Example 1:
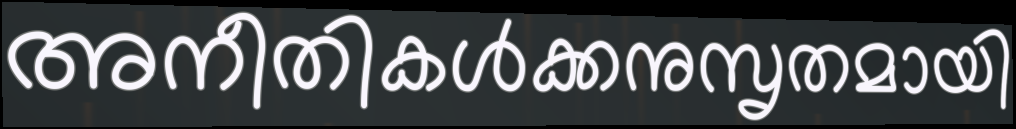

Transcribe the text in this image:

അനീതികൾക്കനുസൃതമായി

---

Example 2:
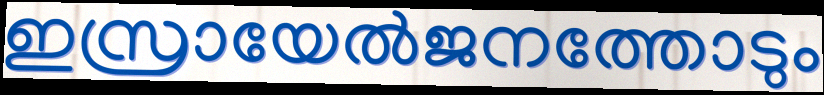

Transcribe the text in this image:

ഇസ്രായേൽജനത്തോടും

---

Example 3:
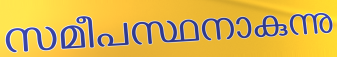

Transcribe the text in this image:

സമീപസ്ഥനാകുന്നു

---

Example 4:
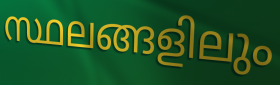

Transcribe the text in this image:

സ്ഥലങ്ങളിലും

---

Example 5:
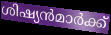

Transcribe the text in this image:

ശിഷ്യൻമാർക്ക്